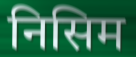
निसिम